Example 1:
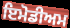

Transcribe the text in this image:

ਇਮੋਡੀਅਮ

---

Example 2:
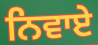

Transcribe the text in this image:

ਨਿਵਾਏ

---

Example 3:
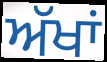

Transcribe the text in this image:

ਅੱਖਾਂ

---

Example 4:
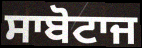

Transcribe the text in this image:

ਸਾਬੋਟਾਜ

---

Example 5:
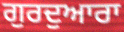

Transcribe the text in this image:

ਗੁਰਦੁਆਰਾ